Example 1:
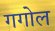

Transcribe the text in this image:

गगोल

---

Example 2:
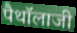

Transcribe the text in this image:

पैथॉलाजी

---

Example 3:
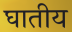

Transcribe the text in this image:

घातीय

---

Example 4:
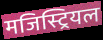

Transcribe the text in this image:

मजिस्ट्रियल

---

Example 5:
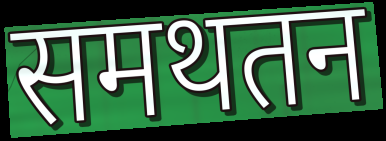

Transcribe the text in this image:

समथतन